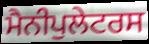
ਮੈਨੀਪੁਲੇਟਰਸ